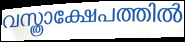
വസ്ത്രാക്ഷേപത്തിൽ